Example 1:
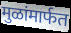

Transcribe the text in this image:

मुळांमार्फत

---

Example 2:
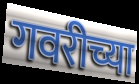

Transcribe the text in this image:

गवरीच्या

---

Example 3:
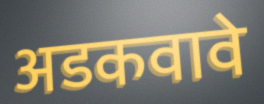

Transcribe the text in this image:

अडकवावे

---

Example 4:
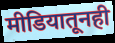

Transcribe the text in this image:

मीडियातूनही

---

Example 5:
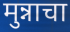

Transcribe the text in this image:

मुन्नाचा